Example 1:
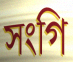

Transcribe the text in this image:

সংগি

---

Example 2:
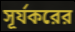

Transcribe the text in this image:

সূর্যকরের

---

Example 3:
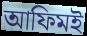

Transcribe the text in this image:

আফিমই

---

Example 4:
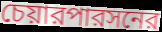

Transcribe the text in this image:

চেয়ারপারসনের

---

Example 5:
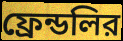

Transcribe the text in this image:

ফ্রেন্ডলির